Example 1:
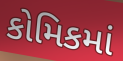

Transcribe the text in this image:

કોમિકમાં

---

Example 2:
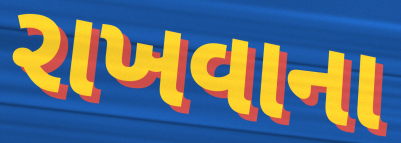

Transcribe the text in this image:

રાખવાના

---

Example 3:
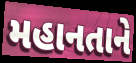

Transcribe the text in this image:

મહાનતાને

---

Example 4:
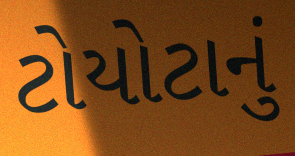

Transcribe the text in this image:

ટોયોટાનું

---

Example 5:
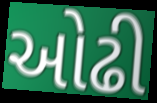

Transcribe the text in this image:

ઓઢી